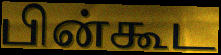
பின்கூட